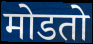
मोडतो